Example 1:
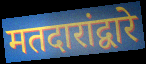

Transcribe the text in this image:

मतदारांद्वारे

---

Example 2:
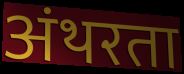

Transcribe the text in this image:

अंथरता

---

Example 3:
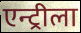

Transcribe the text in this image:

एन्ट्रीला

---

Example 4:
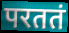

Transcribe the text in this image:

परततं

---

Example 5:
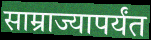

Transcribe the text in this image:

साम्राज्यापर्यंत